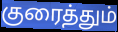
குரைத்தும்